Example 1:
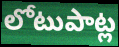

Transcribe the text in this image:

లోటుపాట్ల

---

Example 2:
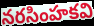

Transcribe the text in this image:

నరసింహకవి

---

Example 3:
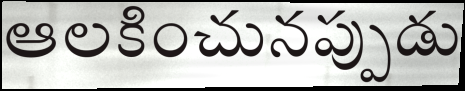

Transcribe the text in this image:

ఆలకించునప్పుడు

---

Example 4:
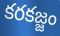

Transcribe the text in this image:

కరకజ్జం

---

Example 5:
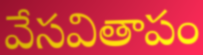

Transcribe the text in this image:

వేసవితాపం